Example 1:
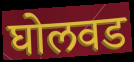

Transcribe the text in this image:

घोलवड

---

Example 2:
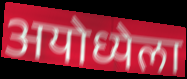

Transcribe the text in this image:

अयोध्येला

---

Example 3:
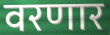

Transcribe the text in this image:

वरणार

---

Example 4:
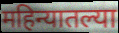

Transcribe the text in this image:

महिन्यातल्या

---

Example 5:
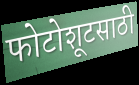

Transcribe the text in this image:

फोटोशूटसाठी